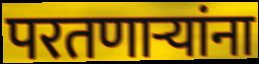
परतणाऱ्यांना